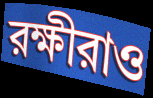
রক্ষীরাও